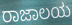
ರಾಜಾಲಯ